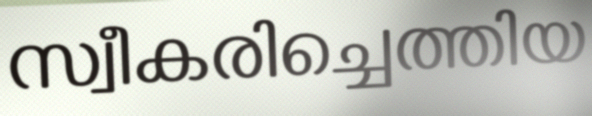
സ്വീകരിച്ചെത്തിയ